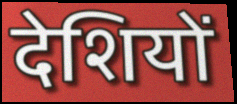
देशियों